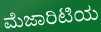
ಮೆಜಾರಿಟಿಯ